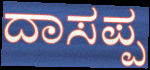
ದಾಸಪ್ಪ